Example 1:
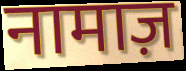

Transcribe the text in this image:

नामाज़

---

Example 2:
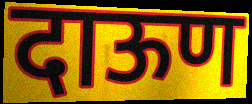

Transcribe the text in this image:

दाऊण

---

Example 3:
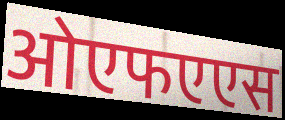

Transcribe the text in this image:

ओएफएएस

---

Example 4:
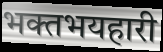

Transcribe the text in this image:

भक्तभयहारी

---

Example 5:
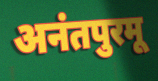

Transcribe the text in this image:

अनंतपुरमू